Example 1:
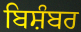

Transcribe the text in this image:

ਬਿਸ਼ੰਬਰ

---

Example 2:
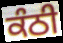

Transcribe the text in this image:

ਕੰਠੀ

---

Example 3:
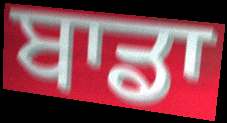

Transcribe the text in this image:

ਬਾਡਾ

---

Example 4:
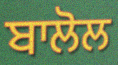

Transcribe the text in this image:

ਬਾਲੋਲ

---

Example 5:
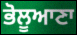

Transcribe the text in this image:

ਭੋਲੂਆਣਾ